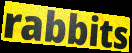
rabbits